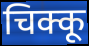
चिक्कू